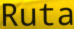
Ruta